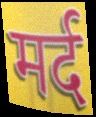
मर्द